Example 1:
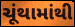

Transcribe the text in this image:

ચૂંથામાંથી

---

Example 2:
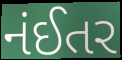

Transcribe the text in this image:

નંઈતર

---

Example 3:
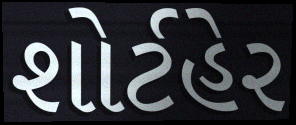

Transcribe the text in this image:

શોર્ટહેર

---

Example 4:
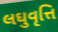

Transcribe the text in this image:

લઘુવૃત્તિ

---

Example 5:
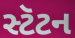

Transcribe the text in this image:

સ્ટૅટન